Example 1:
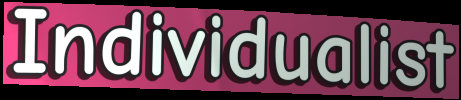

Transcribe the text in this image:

Individualist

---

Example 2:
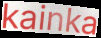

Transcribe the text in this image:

kainka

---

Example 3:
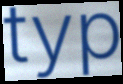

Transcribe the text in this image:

typ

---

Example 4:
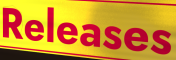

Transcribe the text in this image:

Releases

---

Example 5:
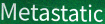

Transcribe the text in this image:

Metastatic